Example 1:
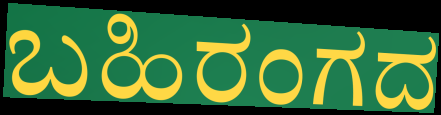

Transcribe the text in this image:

ಬಹಿರಂಗದ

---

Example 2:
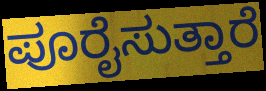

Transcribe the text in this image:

ಪೂರೈಸುತ್ತಾರೆ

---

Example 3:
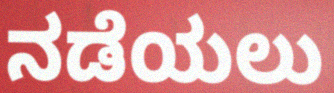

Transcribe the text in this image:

ನಡೆಯಲು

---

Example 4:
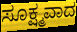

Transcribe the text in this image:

ಸೂಕ್ಷ್ಮವಾದ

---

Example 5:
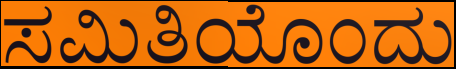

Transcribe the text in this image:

ಸಮಿತಿಯೊಂದು